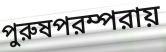
পুরুষপরম্পরায়